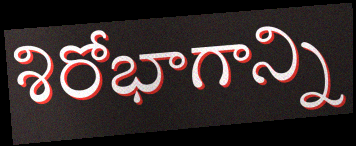
శిరోభాగాన్ని